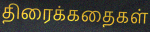
திரைக்கதைகள்